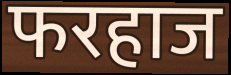
फरहाज